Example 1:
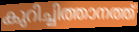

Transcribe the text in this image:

കുറിച്ചിത്താനത്ത്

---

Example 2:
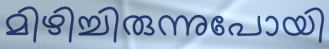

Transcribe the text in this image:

മിഴിച്ചിരുന്നുപോയി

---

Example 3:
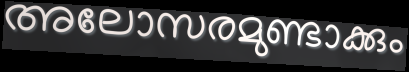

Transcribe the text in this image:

അലോസരമുണ്ടാക്കും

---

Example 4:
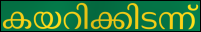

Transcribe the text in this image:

കയറിക്കിടന്ന്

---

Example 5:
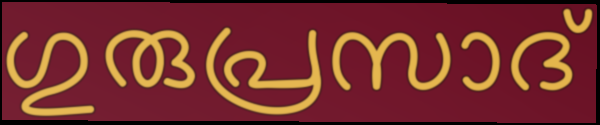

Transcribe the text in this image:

ഗുരുപ്രസാദ്